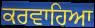
ਕਰਵਾਹਿਆ